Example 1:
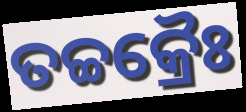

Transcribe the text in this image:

ତଚ୍ଚକ୍ରୈଃ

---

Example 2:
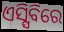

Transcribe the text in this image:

ଏସ୍ସିବିରେ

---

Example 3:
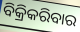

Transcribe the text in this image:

ବିକ୍ରିକରିବାର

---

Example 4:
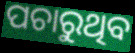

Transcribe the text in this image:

ପଚାରୁଥିବ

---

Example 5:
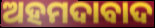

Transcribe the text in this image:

ଅହମଦାବାଦ